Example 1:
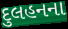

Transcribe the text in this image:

દુલહનના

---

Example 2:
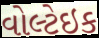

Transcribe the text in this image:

વોલ્ટેઇક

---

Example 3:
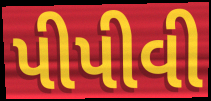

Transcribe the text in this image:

પીપીવી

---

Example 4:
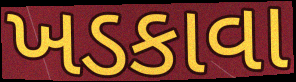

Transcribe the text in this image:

ખડકાવા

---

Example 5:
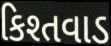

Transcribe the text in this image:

કિશ્તવાડ